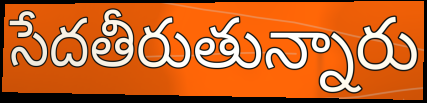
సేదతీరుతున్నారు